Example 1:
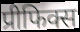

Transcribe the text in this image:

प्रीफिक्स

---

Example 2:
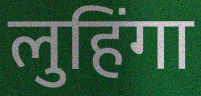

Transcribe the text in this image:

लुहिंगा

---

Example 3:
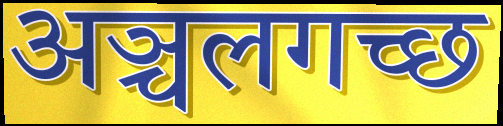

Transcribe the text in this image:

अञ्चलगच्छ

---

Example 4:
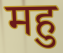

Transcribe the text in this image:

महु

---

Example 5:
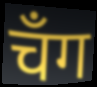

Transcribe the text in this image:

चँग